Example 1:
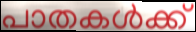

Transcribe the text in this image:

പാതകൾക്ക്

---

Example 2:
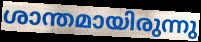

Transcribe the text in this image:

ശാന്തമായിരുന്നു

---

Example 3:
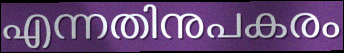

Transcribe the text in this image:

എന്നതിനുപകരം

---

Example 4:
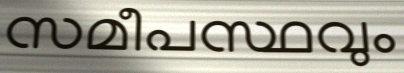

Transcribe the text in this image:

സമീപസ്ഥവും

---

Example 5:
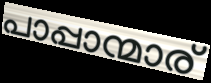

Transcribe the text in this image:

പാപ്പാന്മാര്